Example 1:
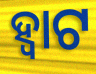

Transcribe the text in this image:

ହ୍ଵାଟ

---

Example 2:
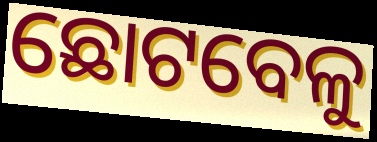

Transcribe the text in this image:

ଛୋଟବେଳୁ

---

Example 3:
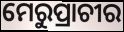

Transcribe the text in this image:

ମେରୁପ୍ରାଚୀର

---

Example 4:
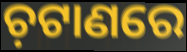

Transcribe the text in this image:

ଚ଼ଟାଣରେ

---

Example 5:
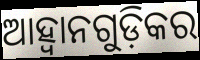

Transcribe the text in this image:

ଆହ୍ଵାନଗୁଡ଼ିକର